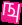
ஙு